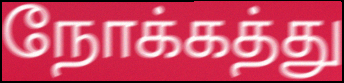
நோக்கத்து